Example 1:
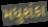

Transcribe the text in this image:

મધુશંકા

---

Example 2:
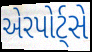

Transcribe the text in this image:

એરપોર્ટ્સે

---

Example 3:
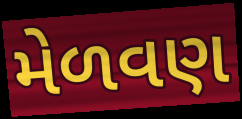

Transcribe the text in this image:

મેળવણ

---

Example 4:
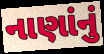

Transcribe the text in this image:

નાણાંનું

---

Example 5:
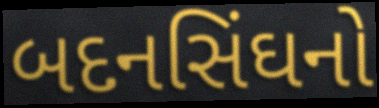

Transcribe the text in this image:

બદનસિંઘનો